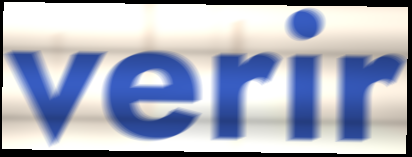
verir